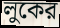
লুকের